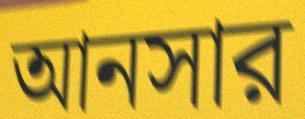
আনসার